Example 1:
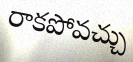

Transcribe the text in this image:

రాకపోవచ్చు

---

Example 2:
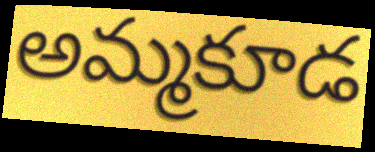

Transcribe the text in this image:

అమ్మకూడ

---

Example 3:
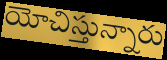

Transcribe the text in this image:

యోచిస్తున్నారు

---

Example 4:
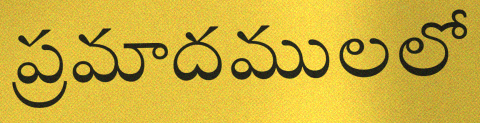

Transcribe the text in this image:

ప్రమాదములలో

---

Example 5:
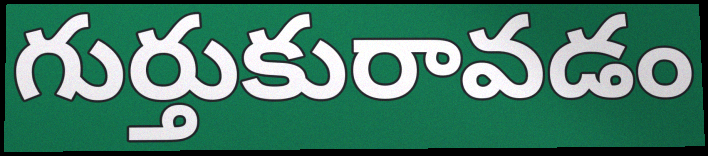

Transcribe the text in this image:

గుర్తుకురావడం